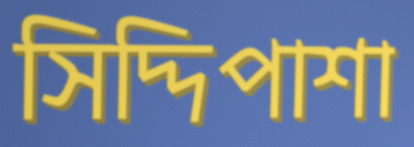
সিদ্দিপাশা